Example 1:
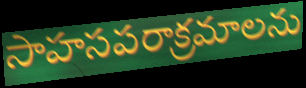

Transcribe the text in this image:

సాహసపరాక్రమాలను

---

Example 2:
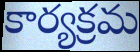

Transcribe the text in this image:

కార్యక్రమ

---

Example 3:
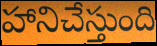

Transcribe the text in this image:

హానిచేస్తుంది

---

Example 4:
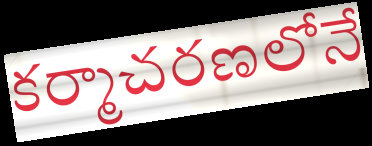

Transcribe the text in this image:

కర్మాచరణలోనే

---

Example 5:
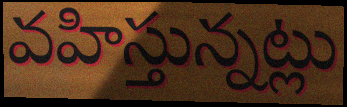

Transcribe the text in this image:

వహిస్తున్నట్లు